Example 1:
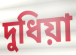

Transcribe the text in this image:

দুধিয়া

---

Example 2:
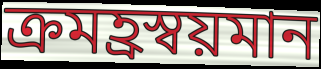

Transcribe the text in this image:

ক্রমহ্রস্বয়মান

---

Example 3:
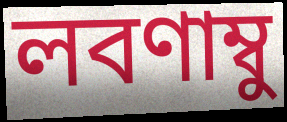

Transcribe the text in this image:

লবণাম্বু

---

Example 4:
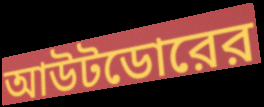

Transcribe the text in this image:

আউটডোরের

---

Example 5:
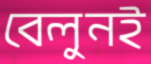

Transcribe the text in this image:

বেলুনই